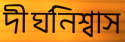
দীর্ঘনিশ্বাস